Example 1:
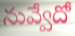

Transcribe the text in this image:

నువ్వేదో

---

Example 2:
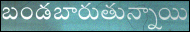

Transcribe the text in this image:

బండబారుతున్నాయి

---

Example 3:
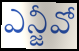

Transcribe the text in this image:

ఎన్జీవో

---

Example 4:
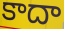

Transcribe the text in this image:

కాదా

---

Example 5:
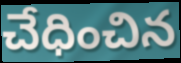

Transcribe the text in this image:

చేధించిన